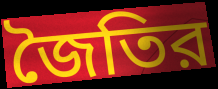
জৈতির